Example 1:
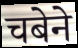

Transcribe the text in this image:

चबेने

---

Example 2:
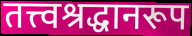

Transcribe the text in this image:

तत्त्वश्रद्धानरूप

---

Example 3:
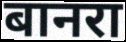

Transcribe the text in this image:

बानरा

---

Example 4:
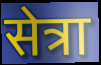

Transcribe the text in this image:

सेत्रा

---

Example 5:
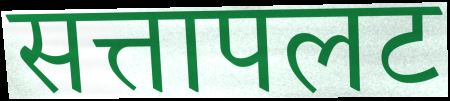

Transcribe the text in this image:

सत्तापलट